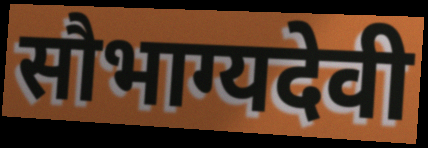
सौभाग्यदेवी